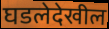
घडलेदेखील